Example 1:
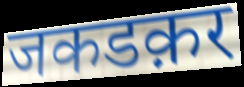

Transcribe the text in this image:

जकडक़र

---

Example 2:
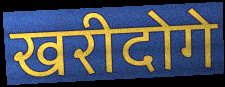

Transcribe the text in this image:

खरीदोगे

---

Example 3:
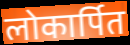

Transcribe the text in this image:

लोकार्पित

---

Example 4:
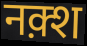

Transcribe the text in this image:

नक़्श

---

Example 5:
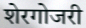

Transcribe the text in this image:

शेरगोजरी